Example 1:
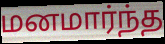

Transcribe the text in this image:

மனமார்ந்த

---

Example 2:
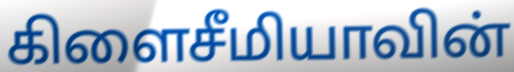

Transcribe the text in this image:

கிளைசீமியாவின்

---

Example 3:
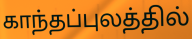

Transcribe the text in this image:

காந்தப்புலத்தில்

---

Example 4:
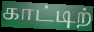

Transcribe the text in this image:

காட்டிற்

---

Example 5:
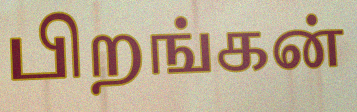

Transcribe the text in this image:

பிறங்கன்